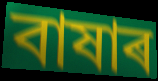
বাষাৰ